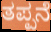
ತಪ್ಪನೆ